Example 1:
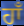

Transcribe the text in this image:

ਹਾਁ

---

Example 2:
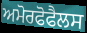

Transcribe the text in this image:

ਅਮੋਰਫੋਫੈਲਸ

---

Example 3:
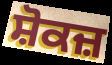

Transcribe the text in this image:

ਸ਼ੋਕਜ਼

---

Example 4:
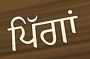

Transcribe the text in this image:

ਪਿੱਗਾਂ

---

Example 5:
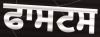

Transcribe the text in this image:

ਫਾਸਟਸ